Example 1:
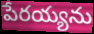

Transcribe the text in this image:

పేరయ్యను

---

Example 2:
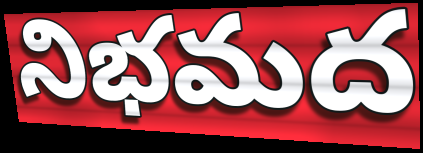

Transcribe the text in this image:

నిభమద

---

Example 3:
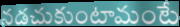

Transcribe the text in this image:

నడచుకుంటామంటే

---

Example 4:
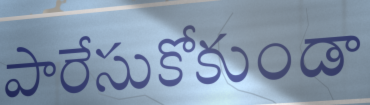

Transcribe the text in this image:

పారేసుకోకుండా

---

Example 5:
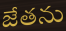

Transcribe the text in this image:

జేతను